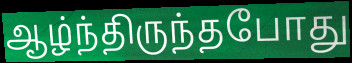
ஆழ்ந்திருந்தபோது